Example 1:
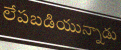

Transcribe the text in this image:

లేపబడియున్నాడు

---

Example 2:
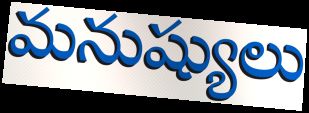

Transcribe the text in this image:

మనుష్యులు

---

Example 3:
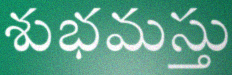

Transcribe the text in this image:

శుభమస్తు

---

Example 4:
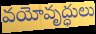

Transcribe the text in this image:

వయోవృద్ధులు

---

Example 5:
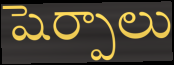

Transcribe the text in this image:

షెర్పాలు